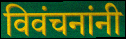
विवंचनांनी